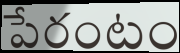
పేరంటం